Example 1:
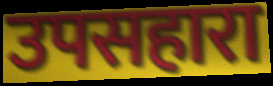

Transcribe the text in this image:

उपसहारा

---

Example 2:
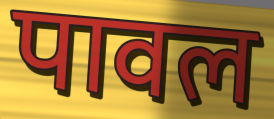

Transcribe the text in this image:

पावल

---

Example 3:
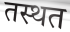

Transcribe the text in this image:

तस्थत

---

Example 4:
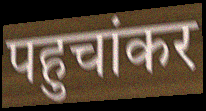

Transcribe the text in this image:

पहुचांकर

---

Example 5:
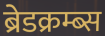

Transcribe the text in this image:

ब्रेडक्रम्ब्स